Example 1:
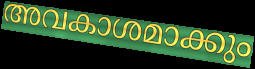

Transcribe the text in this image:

അവകാശമാക്കും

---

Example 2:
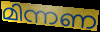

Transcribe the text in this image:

മിന്നണ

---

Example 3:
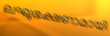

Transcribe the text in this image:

ലഘുഭക്ഷണമായി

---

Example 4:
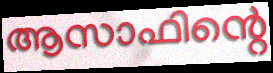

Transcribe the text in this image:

ആസാഫിന്റെ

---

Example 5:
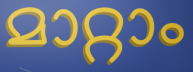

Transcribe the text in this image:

മാറ്റാം